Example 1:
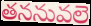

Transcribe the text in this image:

తననువలె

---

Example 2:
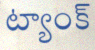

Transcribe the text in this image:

ట్యాంక్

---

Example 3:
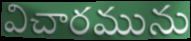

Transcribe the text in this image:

విచారమును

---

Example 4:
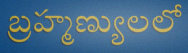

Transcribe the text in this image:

బ్రహ్మణ్యులలో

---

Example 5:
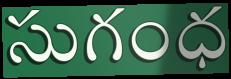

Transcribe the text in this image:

సుగంధ